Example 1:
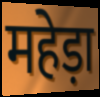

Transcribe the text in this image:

महेड़ा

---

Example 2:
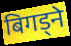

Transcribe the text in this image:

बिगड्ने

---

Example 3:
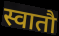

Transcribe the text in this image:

स्वातौ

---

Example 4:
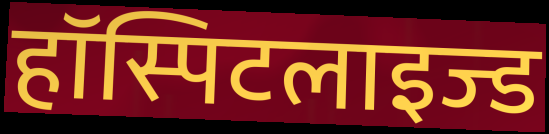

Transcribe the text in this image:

हॉस्पिटलाइज्ड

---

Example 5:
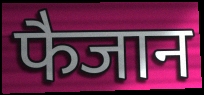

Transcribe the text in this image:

फैजान